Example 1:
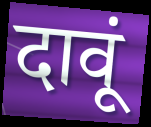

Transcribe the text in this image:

दावूं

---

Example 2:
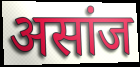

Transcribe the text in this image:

असांज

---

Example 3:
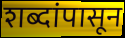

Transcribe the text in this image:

शब्दांपासून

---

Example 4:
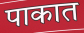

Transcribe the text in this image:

पाकात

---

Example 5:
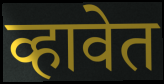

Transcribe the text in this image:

व्हावेत